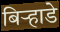
बिऱ्हाडे